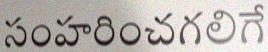
సంహరించగలిగే